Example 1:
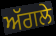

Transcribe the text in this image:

ਅੱਗਲੇ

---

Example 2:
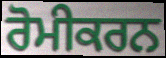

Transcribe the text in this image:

ਰੋਮੀਕਰਨ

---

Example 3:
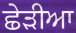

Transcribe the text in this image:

ਛੇੜੀਆ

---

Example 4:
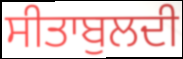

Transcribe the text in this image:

ਸੀਤਾਬੁਲਦੀ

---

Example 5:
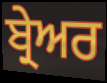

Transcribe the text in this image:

ਬ੍ਰੇਅਰ